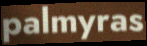
palmyras